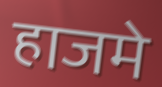
हाजमे